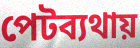
পেটব্যথায়